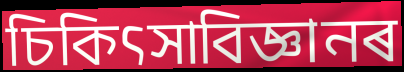
চিকিৎসাবিজ্ঞানৰ